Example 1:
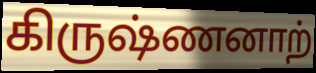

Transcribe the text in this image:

கிருஷ்ணனாற்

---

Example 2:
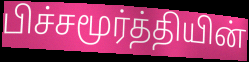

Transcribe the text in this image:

பிச்சமூர்த்தியின்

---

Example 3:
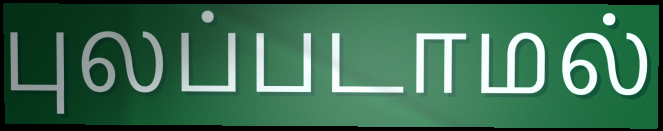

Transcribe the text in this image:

புலப்படாமல்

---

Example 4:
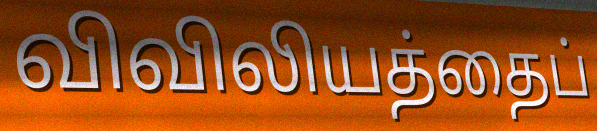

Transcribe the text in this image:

விவிலியத்தைப்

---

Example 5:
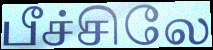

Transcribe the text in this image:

பீச்சிலே